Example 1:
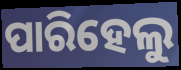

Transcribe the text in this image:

ପାରିହେଲୁ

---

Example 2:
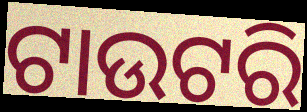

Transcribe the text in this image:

ଟାଉଟରି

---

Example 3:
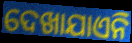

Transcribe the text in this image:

ଦେଖାଯାଏନି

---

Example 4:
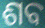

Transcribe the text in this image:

ଶବ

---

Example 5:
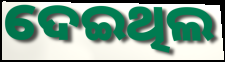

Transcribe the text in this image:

ଦେଇଥିଲ